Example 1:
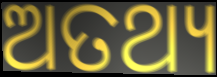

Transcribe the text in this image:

ଅତଥ୍ୟ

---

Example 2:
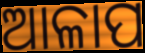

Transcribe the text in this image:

ଆଳାପ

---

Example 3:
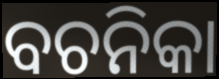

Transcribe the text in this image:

ବଚନିକା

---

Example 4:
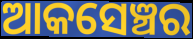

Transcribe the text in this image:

ଆକସେଞ୍ଚର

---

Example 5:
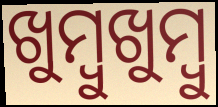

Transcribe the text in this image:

ଖୁମ୍ୱୁଖୁମ୍ବୁ